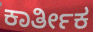
ಕಾರ್ತೀಕ